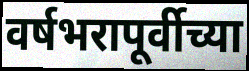
वर्षभरापूर्वीच्या